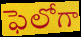
ఫెలోగా